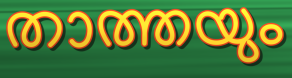
താത്തയും